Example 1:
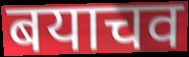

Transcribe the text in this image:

बयाचव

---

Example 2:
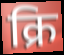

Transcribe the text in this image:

क्रि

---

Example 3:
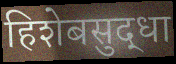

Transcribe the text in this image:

हिशेबसुद्धा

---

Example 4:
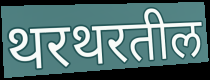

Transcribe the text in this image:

थरथरतील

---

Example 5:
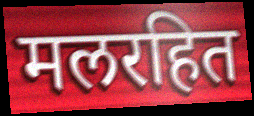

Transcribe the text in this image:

मलरहित